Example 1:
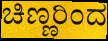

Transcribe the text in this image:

ಚಿಣ್ಣರಿಂದ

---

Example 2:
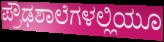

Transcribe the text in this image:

ಪ್ರೌಢಶಾಲೆಗಳಲ್ಲಿಯೂ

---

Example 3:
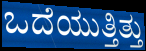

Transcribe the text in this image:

ಒದೆಯುತ್ತಿತ್ತು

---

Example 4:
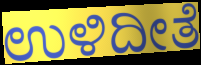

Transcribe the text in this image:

ಉಳಿದೀತೆ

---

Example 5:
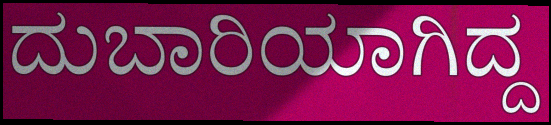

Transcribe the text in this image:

ದುಬಾರಿಯಾಗಿದ್ದ